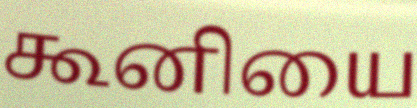
கூனியை